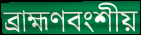
ব্রাহ্মণবংশীয়